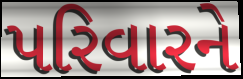
પરિવારને